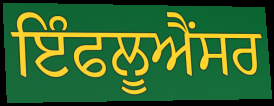
ਇੰਫਲੂਐਂਸਰ